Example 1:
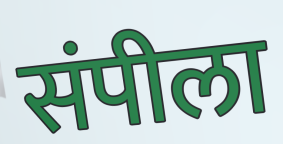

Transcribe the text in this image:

संपीला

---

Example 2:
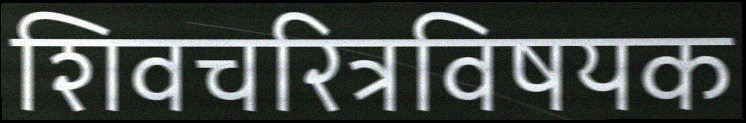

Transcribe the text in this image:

शिवचरित्रविषयक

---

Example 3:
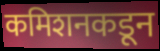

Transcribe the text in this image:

कमिशनकडून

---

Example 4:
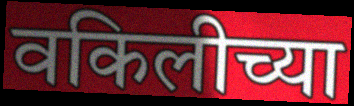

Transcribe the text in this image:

वकिलीच्या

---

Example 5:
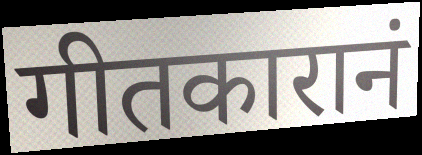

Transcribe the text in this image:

गीतकारानं